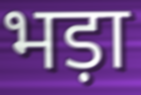
भड़ा